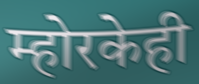
म्होरकेही